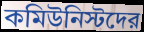
কমিউনিস্টদের